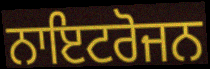
ਨਾਇਟਰੋਜਨ